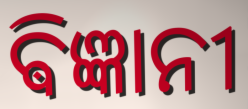
ଵିଜ୍ଞାନୀ